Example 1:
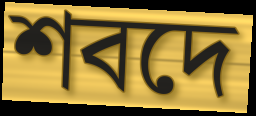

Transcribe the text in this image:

শবদে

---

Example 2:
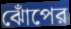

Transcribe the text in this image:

ঝোঁপের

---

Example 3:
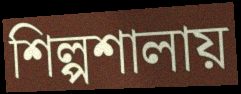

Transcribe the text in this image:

শিল্পশালায়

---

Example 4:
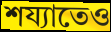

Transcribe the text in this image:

শয্যাতেও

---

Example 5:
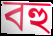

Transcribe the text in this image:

বহু